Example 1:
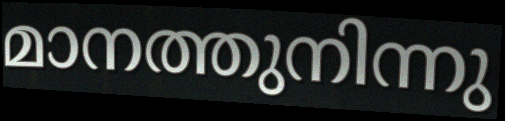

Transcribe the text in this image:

മാനത്തുനിന്നു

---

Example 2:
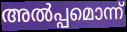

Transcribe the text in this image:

അൽപ്പമൊന്ന്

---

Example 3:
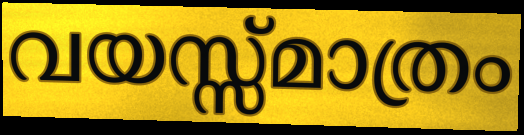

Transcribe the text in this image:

വയസ്സ്മാത്രം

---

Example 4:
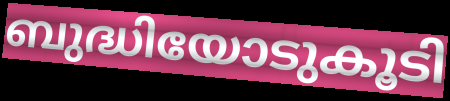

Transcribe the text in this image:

ബുദ്ധിയോടുകൂടി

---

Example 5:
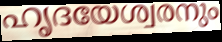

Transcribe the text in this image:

ഹൃദയേശ്വരനും